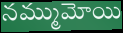
నమ్ముమోయి